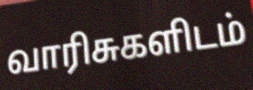
வாரிசுகளிடம்